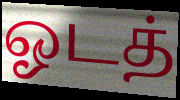
ஓடத்